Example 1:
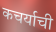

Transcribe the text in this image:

कचर्याची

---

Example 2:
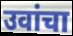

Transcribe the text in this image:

उवांचा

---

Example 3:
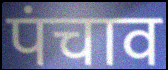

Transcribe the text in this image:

पंचाव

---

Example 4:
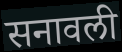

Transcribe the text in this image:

सनावली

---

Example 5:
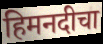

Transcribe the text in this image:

हिमनदीचा